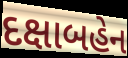
દક્ષાબહેન